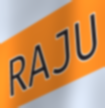
RAJU